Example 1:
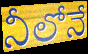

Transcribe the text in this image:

నీలోనే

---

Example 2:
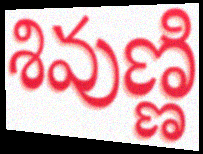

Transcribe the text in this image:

శివుణ్ణి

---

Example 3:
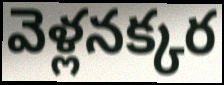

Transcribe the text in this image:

వెళ్లనక్కర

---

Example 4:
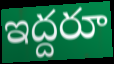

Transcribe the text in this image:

ఇద్దరూ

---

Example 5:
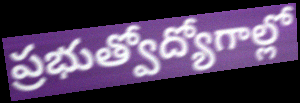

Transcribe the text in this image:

ప్రభుత్వోద్యోగాల్లో